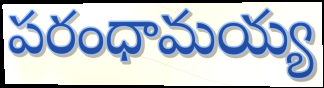
పరంధామయ్య